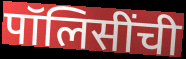
पॉलिसींची